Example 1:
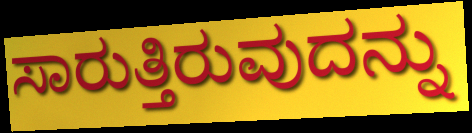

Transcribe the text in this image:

ಸಾರುತ್ತಿರುವುದನ್ನು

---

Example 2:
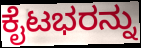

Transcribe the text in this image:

ಕೈಟಭರನ್ನು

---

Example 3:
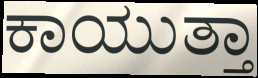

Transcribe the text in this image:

ಕಾಯುತ್ತಾ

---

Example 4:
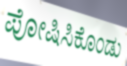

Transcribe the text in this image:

ಪೋಷಿಸಿಕೊಂಡು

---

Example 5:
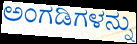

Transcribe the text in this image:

ಅಂಗಡಿಗಳನ್ನು